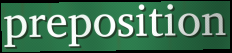
preposition